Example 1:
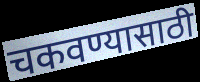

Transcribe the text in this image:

चकवण्यासाठी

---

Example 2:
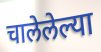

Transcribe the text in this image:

चालेलेल्या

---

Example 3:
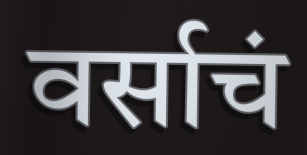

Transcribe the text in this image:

वर्साचं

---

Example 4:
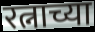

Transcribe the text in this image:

रत्नाच्या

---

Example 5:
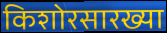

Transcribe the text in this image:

किशोरसारख्या